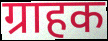
ग्राहक